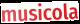
musicola